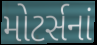
મોટર્સનાં